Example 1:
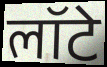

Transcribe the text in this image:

लॉटे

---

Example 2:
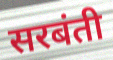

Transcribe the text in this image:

सरबंती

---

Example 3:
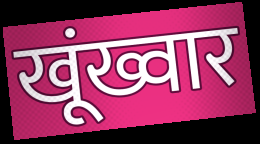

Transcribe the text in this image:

खूंख्वार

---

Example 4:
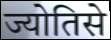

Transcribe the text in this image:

ज्योतिसे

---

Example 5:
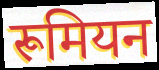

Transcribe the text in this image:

रूमियन